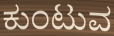
ಕುಂಟುವ